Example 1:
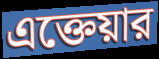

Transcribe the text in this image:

এক্তেয়ার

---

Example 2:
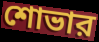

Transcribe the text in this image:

শোভার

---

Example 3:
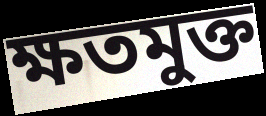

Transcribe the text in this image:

ক্ষতমুক্ত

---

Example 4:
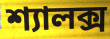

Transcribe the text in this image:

শ্যালক্স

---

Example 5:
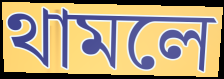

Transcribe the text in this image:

থামলে